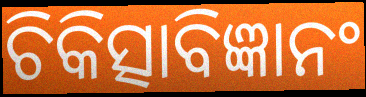
ଚିକିତ୍ସାବିଜ୍ଞାନଂ